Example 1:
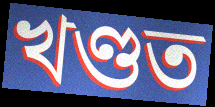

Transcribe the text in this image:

খণ্ডত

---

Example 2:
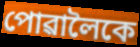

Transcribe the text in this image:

পোৱালৈকে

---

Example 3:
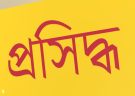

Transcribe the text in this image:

প্ৰসিদ্ধ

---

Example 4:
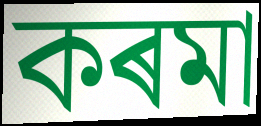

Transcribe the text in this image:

কৰমা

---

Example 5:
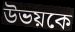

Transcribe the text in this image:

উভয়কে